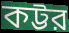
কট্টর